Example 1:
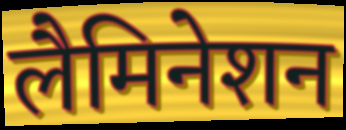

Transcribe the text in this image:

लैमिनेशन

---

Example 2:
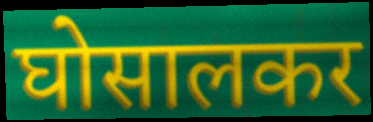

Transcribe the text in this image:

घोसालकर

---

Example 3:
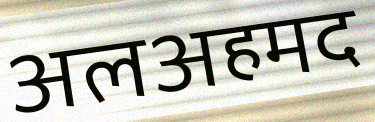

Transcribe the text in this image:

अलअहमद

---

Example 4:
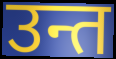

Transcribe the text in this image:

उन्त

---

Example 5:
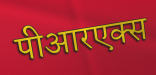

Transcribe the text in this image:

पीआरएक्स